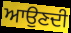
ਆਉਣਦੀ